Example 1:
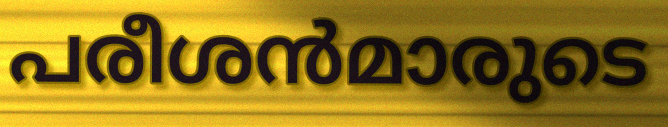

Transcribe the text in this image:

പരീശൻമാരുടെ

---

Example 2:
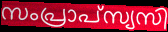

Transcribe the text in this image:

സംപ്രാപ്സ്യസി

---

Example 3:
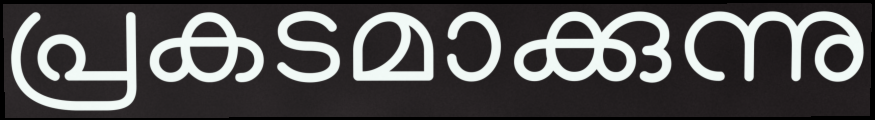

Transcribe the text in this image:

പ്രകടമാക്കുന്നു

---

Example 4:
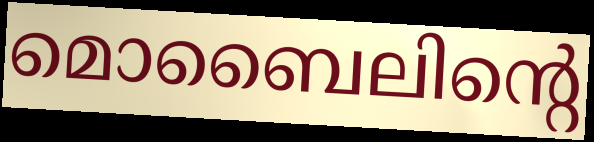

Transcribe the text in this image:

മൊബൈലിന്റെ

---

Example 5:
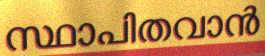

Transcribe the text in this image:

സ്ഥാപിതവാൻ